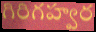
గిరిగహ్వర